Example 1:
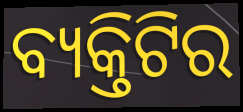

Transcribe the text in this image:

ବ୍ୟକ୍ତିଟିର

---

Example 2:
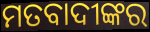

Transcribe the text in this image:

ମତବାଦୀଙ୍କର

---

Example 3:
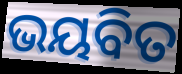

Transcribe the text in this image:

ଭୟବିତ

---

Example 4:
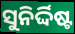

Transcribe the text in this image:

ସୁନିର୍ଦ୍ଦିଷ୍ଟ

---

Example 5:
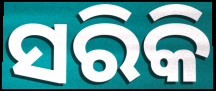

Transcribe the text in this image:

ସରିକି